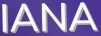
IANA